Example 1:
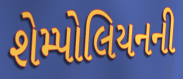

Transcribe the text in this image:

શેમ્પોલિયનની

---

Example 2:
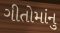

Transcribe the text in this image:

ગીતોમાંનુ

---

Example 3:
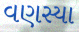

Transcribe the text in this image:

વણસ્યા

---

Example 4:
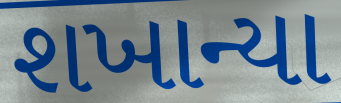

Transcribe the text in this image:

શખાન્યા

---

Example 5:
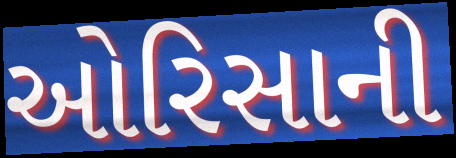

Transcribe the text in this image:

ઓરિસાની